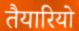
तैयारियो